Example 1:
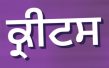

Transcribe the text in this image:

ਕ੍ਰੀਟਸ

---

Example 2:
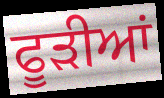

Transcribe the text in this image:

ਫੂੜੀਆਂ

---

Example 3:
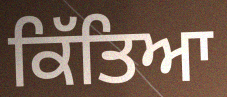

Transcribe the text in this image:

ਕਿੱਤਿਆ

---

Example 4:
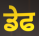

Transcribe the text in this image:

ਡੇਫ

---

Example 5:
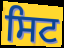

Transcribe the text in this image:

ਸਿਟ